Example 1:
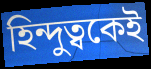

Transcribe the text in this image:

হিন্দুত্বকেই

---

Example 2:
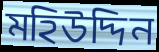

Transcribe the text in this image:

মহিউদ্দিন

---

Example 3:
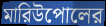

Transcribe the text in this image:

মারিউপোলের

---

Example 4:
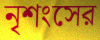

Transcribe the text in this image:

নৃশংসের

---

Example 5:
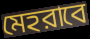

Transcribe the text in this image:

মেহরাবে